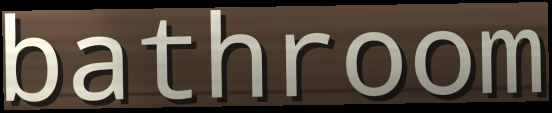
bathroom